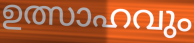
ഉത്സാഹവും